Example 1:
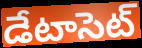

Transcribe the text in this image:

డేటాసెట్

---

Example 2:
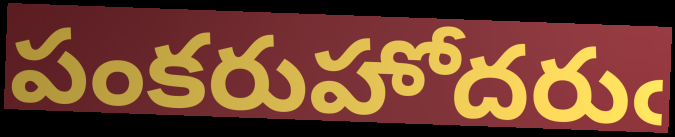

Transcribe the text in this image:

పంకరుహోదరుఁ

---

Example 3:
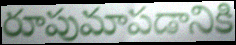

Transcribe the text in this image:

రూపుమాపడానికి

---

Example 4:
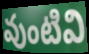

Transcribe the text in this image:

వుంటివి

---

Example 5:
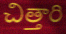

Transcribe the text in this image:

చిత్తారి